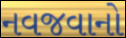
નવજવાનો